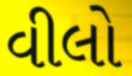
વીલો